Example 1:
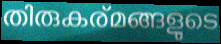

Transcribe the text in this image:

തിരുകര്മങ്ങളുടെ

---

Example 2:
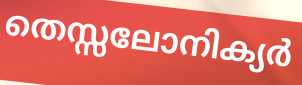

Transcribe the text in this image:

തെസ്സലോനിക്യർ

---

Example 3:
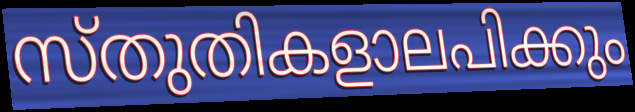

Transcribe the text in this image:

സ്തുതികളാലപിക്കും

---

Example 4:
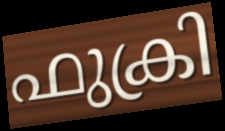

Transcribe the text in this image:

ഫുക്രി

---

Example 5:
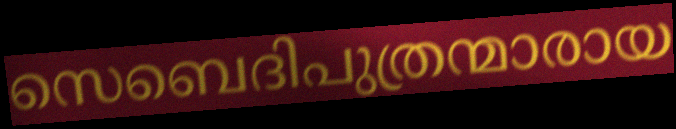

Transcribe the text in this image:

സെബെദിപുത്രന്മാരായ